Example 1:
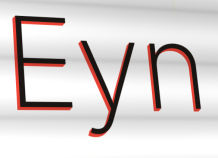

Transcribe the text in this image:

Eyn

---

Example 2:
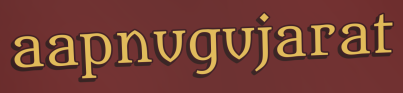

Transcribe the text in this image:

aapnugujarat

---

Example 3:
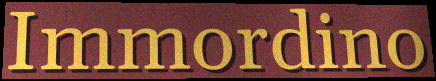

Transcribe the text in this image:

Immordino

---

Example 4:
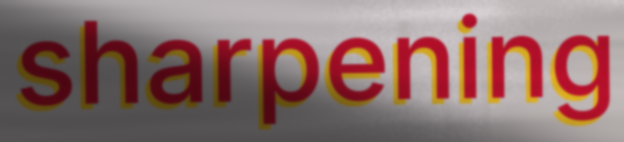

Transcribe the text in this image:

sharpening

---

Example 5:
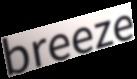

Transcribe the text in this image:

breeze